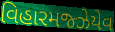
વિહારમજ્ઝેયેવ